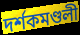
দর্শকমণ্ডলী